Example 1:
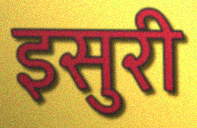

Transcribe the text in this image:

इसुरी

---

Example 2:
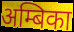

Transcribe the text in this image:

अम्बिका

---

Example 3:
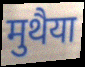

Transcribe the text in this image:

मुथैया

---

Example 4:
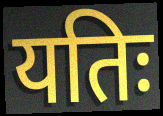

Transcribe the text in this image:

यतिः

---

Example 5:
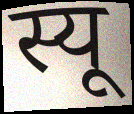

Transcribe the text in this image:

स्यू